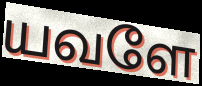
யவளே